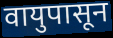
वायुपासून